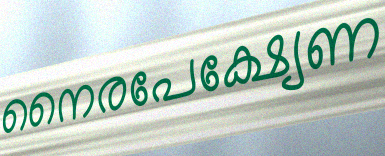
നൈരപേക്ഷ്യേണ